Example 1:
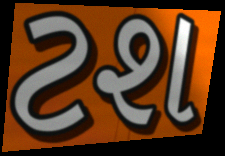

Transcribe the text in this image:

ટશ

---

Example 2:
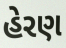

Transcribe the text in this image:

હેરણ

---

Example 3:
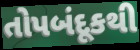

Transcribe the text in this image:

તોપબંદૂકથી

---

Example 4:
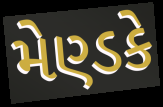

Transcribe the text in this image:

મેણ્ડકે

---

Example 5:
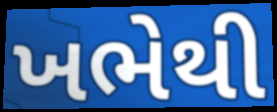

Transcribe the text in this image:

ખભેથી